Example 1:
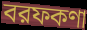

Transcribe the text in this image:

বরফকণা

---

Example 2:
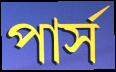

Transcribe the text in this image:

পার্স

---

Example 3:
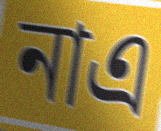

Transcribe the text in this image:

নাএ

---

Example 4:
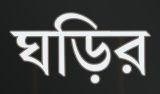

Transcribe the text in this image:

ঘড়ির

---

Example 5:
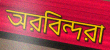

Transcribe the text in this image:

অরবিন্দরা